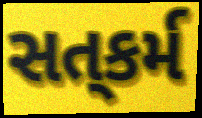
સત્‌કર્મ